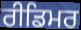
ਰੀਡਿਮਰ